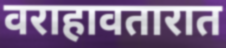
वराहावतारात